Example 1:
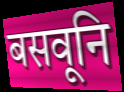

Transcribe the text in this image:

बसवूनि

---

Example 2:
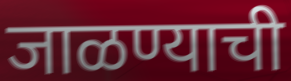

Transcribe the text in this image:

जाळण्याची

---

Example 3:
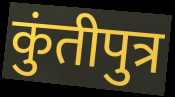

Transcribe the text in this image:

कुंतीपुत्र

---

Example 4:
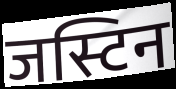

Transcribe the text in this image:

जस्टिन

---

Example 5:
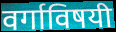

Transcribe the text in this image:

वर्गाविषयी